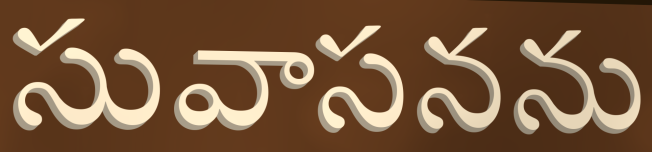
సువాసనను